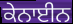
ਕੇਨਾਈਨ